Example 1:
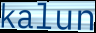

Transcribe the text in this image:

kalun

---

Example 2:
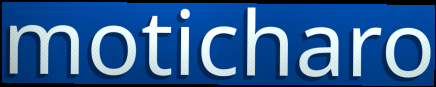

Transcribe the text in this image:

moticharo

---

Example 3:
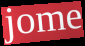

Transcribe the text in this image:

jome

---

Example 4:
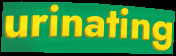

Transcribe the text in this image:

urinating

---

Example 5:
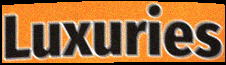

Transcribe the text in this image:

Luxuries